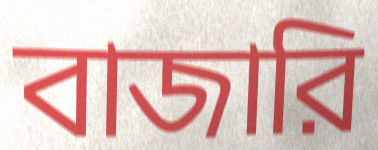
বাজারি